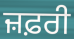
ਜ਼ਫ਼ਰੀ